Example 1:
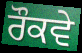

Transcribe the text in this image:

ਰੌਕਵੇ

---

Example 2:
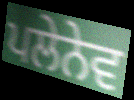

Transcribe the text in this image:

ਪਲੇਨੇਵ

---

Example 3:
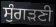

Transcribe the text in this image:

ਸੁੰਗੜਣੀ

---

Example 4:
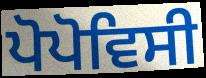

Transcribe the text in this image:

ਪੋਪੋਵਿਸੀ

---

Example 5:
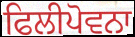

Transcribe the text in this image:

ਫਿਲੀਪੋਵਨਾ